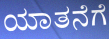
ಯಾತನೆಗೆ